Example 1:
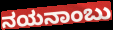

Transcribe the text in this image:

ನಯನಾಂಬು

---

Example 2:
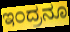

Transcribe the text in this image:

ಇಂದ್ರನೂ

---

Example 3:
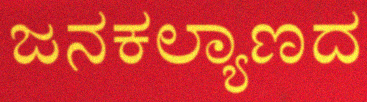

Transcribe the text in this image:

ಜನಕಲ್ಯಾಣದ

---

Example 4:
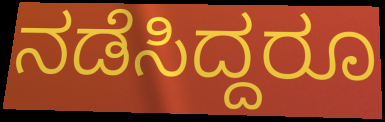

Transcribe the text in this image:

ನಡೆಸಿದ್ದರೂ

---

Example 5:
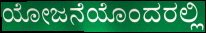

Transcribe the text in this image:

ಯೋಜನೆಯೊಂದರಲ್ಲಿ